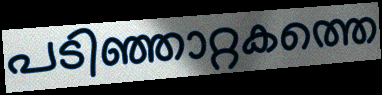
പടിഞ്ഞാറ്റകത്തെ